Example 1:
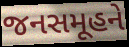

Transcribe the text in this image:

જનસમૂહને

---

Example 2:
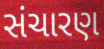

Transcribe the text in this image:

સંચારણ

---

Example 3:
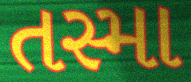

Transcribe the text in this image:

તસ્મા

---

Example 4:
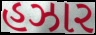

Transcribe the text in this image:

હઝાર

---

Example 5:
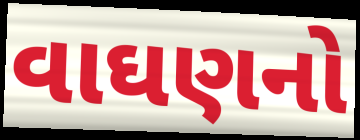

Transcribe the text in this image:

વાઘણનો